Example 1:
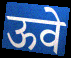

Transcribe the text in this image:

ऊवे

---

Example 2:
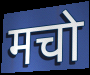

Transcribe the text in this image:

मचो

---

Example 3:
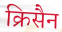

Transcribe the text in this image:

क्रिसैन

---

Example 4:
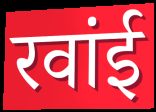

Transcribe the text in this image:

रवांई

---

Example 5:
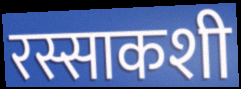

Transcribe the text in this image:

रस्साकशी